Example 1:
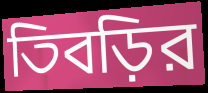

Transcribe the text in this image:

তিবড়ির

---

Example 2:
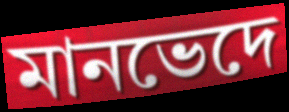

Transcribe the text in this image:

মানভেদে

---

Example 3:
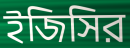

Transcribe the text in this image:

ইজিসির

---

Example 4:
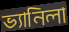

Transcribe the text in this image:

ভ্যানিলা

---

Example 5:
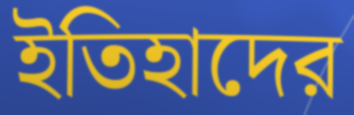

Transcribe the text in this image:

ইতিহাদের